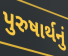
પુરુષાર્થનું